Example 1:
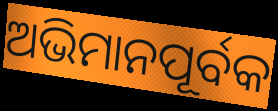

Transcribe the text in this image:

ଅଭିମାନପୂର୍ବକ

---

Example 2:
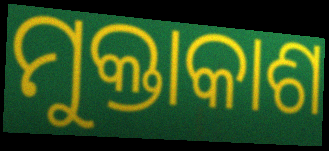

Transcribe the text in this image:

ମୁକ୍ତାକାଶ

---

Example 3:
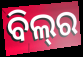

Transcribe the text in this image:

ବିଲ୍‌ର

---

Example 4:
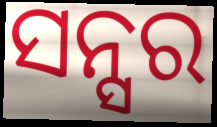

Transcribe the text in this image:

ସନ୍ସର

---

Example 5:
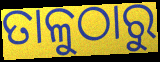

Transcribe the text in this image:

ତାଳୁଠାରୁ